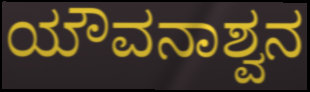
ಯೌವನಾಶ್ವನ